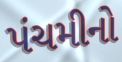
પંચમીનો